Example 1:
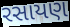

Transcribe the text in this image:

રસાયણ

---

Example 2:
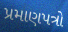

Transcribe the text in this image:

પ્રમાણપત્રો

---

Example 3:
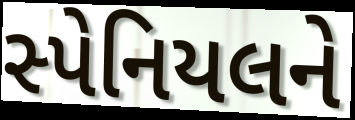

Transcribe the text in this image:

સ્પેનિયલને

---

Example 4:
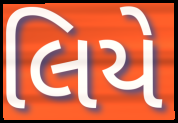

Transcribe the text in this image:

લિયે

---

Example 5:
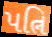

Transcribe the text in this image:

પત્નિ